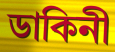
ডাকিনী